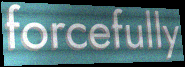
forcefully